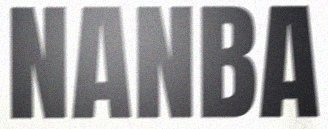
NANBA